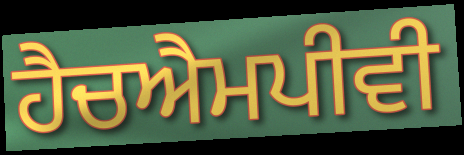
ਹੈਚਐਮਪੀਵੀ